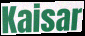
Kaisar